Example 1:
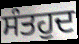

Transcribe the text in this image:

ਸੰਤਹੁਦ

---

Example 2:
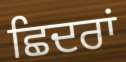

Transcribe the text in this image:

ਛਿਦਰਾਂ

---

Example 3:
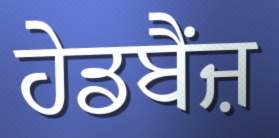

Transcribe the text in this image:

ਹੇਡਬੈਂਜ਼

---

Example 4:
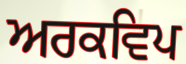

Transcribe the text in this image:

ਅਰਕਵਿਪ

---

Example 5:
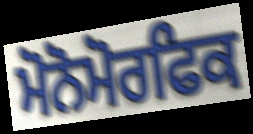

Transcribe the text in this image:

ਮੋਨੋਮੋਰਫਿਕ